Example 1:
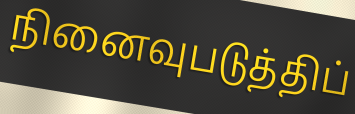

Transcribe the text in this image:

நினைவுபடுத்திப்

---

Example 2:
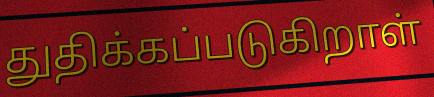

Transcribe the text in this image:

துதிக்கப்படுகிறாள்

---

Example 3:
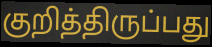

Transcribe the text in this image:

குறித்திருப்பது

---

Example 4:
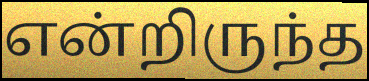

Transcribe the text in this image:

என்றிருந்த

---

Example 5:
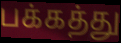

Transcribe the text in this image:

பக்கத்து